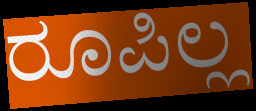
ರೂಪಿಲ್ಲ